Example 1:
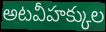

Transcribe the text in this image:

అటవీహక్కుల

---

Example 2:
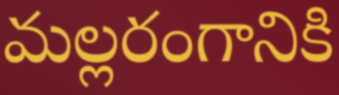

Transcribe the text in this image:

మల్లరంగానికి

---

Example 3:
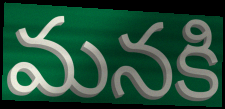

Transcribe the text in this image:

మనకి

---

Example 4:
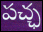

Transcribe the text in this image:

పచ్ఛ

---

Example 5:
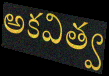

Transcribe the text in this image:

అకవిత్వ